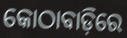
କୋଠାବାଡ଼ିରେ